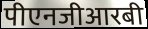
पीएनजीआरबी